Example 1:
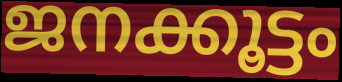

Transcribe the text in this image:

ജനക്കൂട്ടം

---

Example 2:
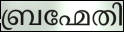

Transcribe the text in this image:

ബ്രഹ്മേതി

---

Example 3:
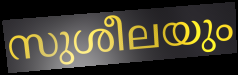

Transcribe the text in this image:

സുശീലയും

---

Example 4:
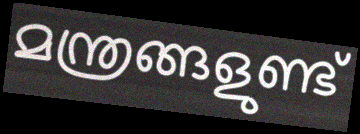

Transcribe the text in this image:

മന്ത്രങ്ങളുണ്ട്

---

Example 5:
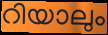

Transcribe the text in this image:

റിയാലും